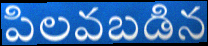
పిలవబడిన